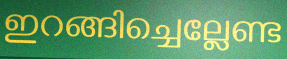
ഇറങ്ങിച്ചെല്ലേണ്ട